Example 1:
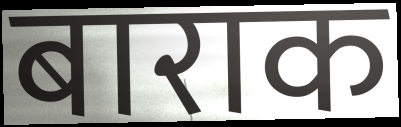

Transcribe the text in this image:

बाराक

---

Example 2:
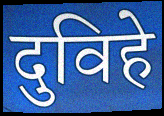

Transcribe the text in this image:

दुविहे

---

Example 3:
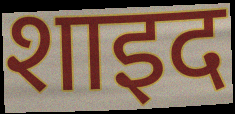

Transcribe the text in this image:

शाइद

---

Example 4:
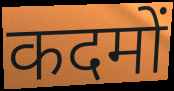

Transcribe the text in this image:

कदमों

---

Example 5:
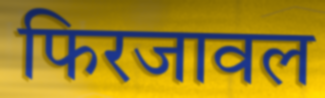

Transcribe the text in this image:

फिरजावल